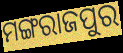
ମଙ୍ଗରାଜପୁର